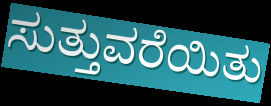
ಸುತ್ತುವರೆಯಿತು